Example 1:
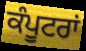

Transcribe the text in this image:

ਕੰਪੂਟਰਾਂ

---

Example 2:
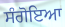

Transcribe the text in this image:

ਸੰਗੋਇਆ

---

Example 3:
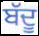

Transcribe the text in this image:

ਬੱਦੂ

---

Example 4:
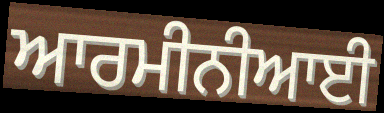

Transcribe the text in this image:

ਆਰਮੀਨੀਆਈ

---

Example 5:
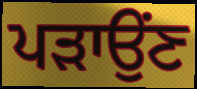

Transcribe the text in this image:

ਪੜਾਉਂਣ